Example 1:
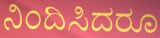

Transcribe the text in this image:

ನಿಂದಿಸಿದರೂ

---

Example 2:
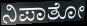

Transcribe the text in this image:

ನಿಪಾತೋ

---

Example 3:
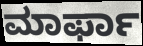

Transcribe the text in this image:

ಮಾರ್ಫಾ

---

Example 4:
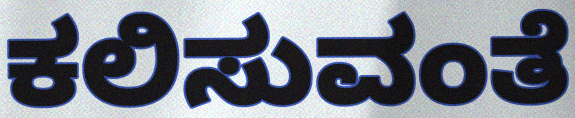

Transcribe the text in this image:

ಕಲಿಸುವಂತೆ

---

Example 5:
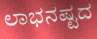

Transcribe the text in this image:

ಲಾಭನಷ್ಟದ